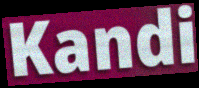
Kandi